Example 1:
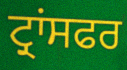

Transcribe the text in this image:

ਟ੍ਰਾਂਸਫਰ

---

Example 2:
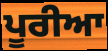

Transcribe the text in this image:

ਪੂਰੀਆ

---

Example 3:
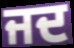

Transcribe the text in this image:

ਜਦ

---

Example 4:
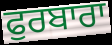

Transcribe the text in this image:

ਫੁਰਬਾਰਾ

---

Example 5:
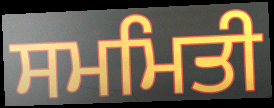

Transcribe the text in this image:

ਸਮਮਿਤੀ